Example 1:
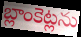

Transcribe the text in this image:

బ్లాంకెట్లను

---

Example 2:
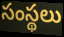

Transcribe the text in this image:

సంస్థలు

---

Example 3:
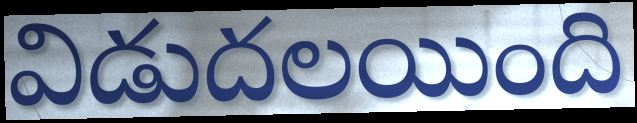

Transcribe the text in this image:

విడుదలయింది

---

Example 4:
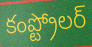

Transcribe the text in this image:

కంప్ట్రోలర్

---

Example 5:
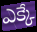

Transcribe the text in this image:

ఎక్కే